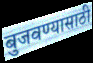
बुजवण्यासाठी